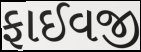
ફાઈવજી